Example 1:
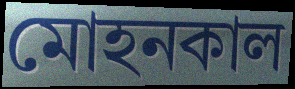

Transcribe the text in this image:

মোহনকাল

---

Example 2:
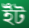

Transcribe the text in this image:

ইঁট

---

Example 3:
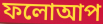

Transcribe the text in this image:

ফলোআপ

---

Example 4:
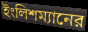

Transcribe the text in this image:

ইংলিশম্যানের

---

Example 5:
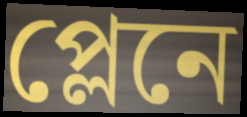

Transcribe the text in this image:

প্লেনে